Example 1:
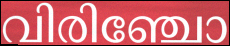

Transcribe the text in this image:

വിരിഞ്ചോ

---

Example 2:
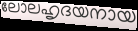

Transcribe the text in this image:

ലോലഹൃദയനായ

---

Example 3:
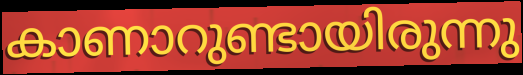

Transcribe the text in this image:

കാണാറുണ്ടായിരുന്നു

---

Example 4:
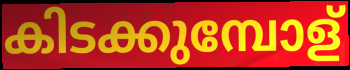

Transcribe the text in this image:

കിടക്കുമ്പോള്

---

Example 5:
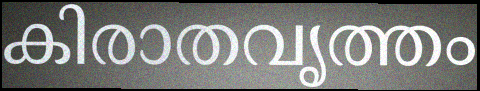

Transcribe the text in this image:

കിരാതവൃത്തം